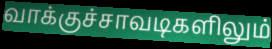
வாக்குச்சாவடிகளிலும்